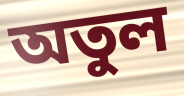
অতুল